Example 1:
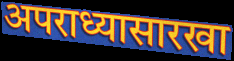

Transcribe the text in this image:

अपराध्यासारखा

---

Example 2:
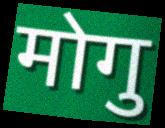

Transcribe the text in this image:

मोगु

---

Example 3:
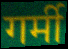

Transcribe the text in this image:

गर्मी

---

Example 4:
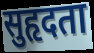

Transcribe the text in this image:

सुहृदता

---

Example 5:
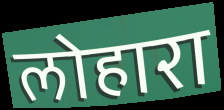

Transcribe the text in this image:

लोहारा